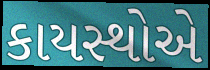
કાયસ્થોએ